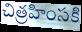
చిత్రహింసకి